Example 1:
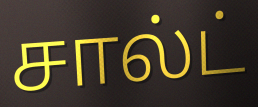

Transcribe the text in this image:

சால்ட்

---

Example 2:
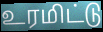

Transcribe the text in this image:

உரமிட்டு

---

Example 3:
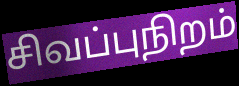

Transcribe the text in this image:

சிவப்புநிறம்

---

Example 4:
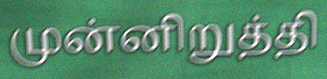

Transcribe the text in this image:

முன்னிறுத்தி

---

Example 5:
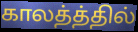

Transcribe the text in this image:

காலத்த்தில்